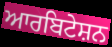
ਆਰਬਿਟੇਸ਼ਨ